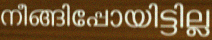
നീങ്ങിപ്പോയിട്ടില്ല